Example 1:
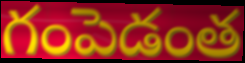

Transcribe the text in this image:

గంపెడంత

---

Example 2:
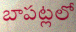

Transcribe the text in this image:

బాపట్లలో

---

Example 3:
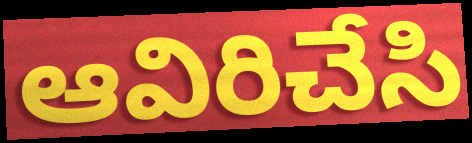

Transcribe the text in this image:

ఆవిరిచేసి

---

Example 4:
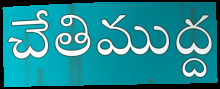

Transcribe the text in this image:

చేతిముద్ద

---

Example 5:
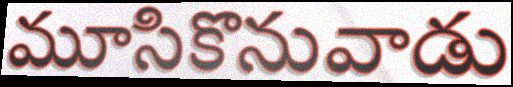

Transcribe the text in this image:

మూసికొనువాడు